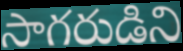
సాగరుడిని